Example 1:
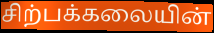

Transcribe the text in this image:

சிற்பக்கலையின்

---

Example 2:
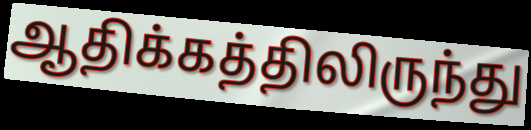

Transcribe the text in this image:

ஆதிக்கத்திலிருந்து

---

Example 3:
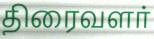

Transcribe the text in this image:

திரைவளர்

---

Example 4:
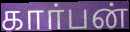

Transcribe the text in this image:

கார்பன்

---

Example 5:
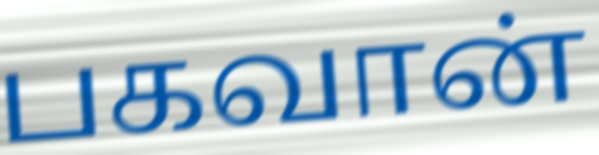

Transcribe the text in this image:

பகவான்